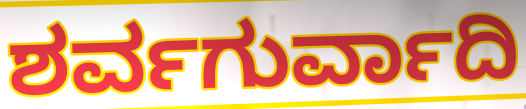
ಶರ್ವಗುರ್ವಾದಿ